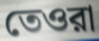
তেওরা